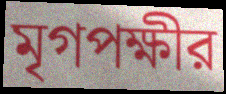
মৃগপক্ষীর